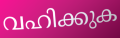
വഹിക്കുക